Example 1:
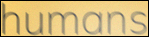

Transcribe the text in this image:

humans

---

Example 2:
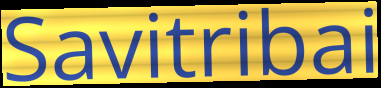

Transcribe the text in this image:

Savitribai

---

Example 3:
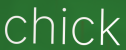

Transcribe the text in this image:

chick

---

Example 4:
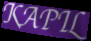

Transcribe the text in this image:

KAPIL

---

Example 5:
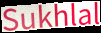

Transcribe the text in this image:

Sukhlal